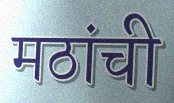
मठांची